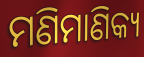
ମଣିମାଣିକ୍ୟ